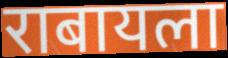
राबायला